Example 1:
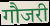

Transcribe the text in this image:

गौजरी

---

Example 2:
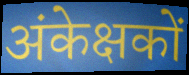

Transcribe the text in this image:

अंकेक्षकों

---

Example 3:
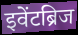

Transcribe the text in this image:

इवेंटब्रिज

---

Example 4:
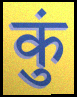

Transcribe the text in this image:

कुं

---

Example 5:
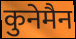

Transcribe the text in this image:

कुनेमैन